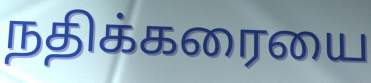
நதிக்கரையை